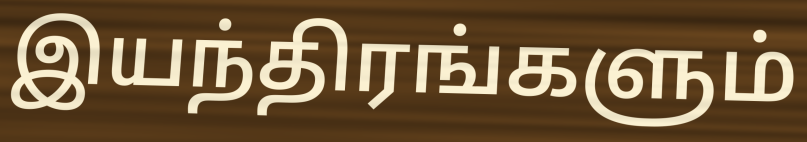
இயந்திரங்களும்